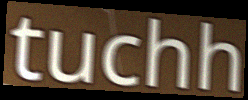
tuchh